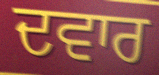
ਦਵਾਰ